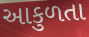
આકુળતા